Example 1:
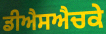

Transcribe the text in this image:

ਡੀਐਸਐਚਕੇ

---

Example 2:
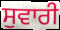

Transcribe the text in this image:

ਸੁਵਾਰੀ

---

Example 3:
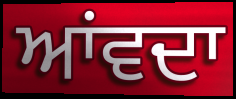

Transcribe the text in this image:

ਆਂਵਦਾ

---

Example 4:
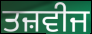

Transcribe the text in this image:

ਤਜ਼ਵੀਜ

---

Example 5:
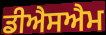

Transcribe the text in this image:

ਡੀਐਸਐਮ